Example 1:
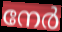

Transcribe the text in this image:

നേർ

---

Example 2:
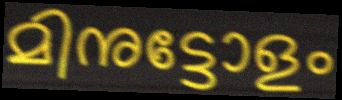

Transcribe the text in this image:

മിനുട്ടോളം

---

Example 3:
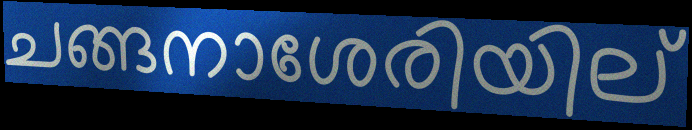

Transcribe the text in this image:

ചങ്ങനാശേരിയില്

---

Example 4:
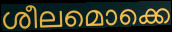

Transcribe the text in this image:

ശീലമൊക്കെ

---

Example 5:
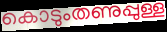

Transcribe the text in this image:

കൊടുംതണുപ്പുള്ള